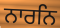
ਨਾਰਨਿ